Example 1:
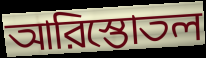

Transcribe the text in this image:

আরিস্তোতল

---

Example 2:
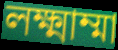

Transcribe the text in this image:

লক্ষ্মাম্মা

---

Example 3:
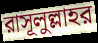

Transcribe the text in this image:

রাসূলুল্লাহর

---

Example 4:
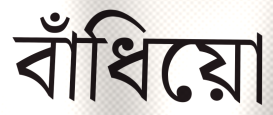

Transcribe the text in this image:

বাঁধিয়ো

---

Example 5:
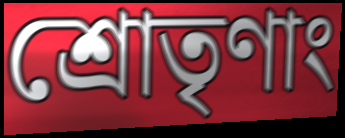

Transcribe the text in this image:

শ্রোতৃণাং